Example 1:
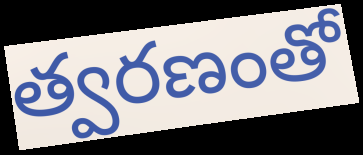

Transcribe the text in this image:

త్వరణంతో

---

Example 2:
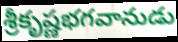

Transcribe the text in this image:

శ్రీకృష్ణభగవానుడు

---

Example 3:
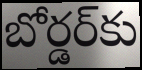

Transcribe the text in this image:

బోర్డర్‌కు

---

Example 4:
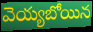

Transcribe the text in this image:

వెయ్యబోయిన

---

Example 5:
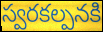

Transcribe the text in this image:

స్వరకల్పనకి